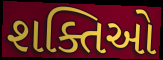
શક્તિઓ